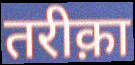
तरीक़ा